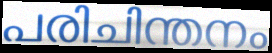
പരിചിന്തനം